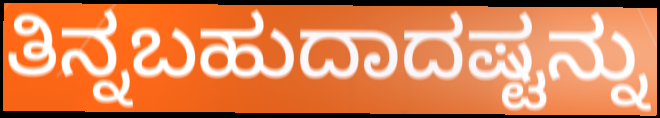
ತಿನ್ನಬಹುದಾದಷ್ಟನ್ನು